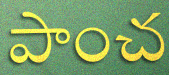
పాంచ